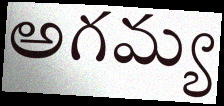
అగమ్య